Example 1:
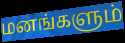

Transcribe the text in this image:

மனங்களும்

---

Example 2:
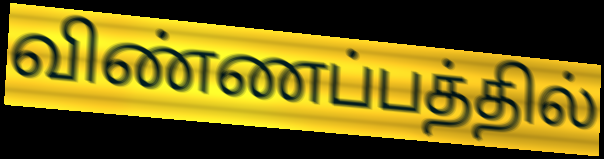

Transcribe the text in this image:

விண்ணப்பத்தில்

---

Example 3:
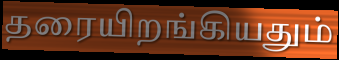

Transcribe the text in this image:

தரையிறங்கியதும்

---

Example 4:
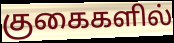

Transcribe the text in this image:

குகைகளில்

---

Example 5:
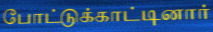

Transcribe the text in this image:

போட்டுக்காட்டினார்